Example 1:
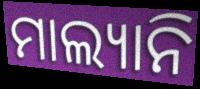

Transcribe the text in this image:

ମାଲ୍ୟାନି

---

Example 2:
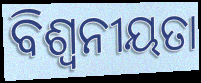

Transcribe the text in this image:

ବିଶ୍ୱନୀୟତା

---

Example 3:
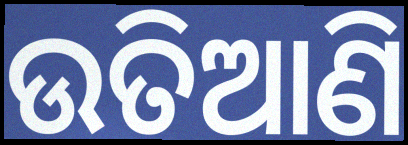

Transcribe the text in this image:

ଉତିଆଣି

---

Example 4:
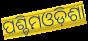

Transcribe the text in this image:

ପଶ୍ଚିମଓଡ଼ିଶା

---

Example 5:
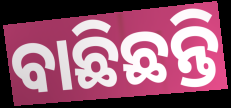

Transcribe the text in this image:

ବାଛିଛନ୍ତି